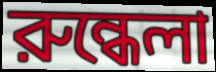
রুন্ধেলা